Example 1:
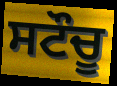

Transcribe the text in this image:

ਸਟੌਚੂ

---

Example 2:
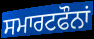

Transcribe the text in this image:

ਸਮਾਰਟਫੌਨਾਂ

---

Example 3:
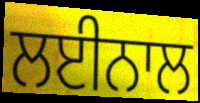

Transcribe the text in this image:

ਲਈਨਾਲ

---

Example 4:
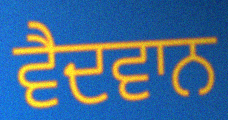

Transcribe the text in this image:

ਵੈਦਵਾਨ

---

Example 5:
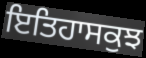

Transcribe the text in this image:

ਇਤਿਹਾਸਕੁਝ